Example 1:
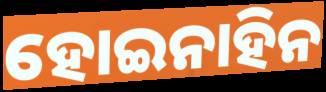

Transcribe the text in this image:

ହୋଇନାହିନ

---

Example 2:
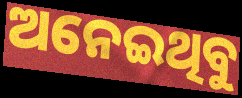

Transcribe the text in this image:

ଅନେଇଥିବୁ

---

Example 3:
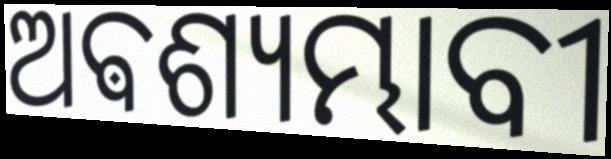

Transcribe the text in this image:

ଅଵଶ୍ୟମ୍ଭାବୀ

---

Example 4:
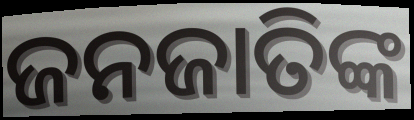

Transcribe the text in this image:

ଜନଜାତିଙ୍କ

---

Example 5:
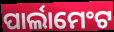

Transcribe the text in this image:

ପାର୍ଲାମେଂଟ